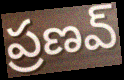
ప్రణవ్